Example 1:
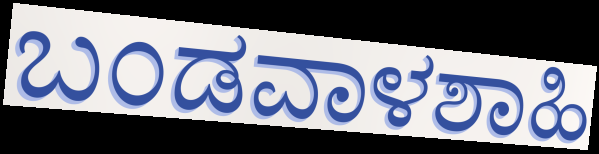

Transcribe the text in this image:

ಬಂಡವಾಳಶಾಹಿ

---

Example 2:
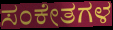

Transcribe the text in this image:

ಸಂಕೇತಗಳ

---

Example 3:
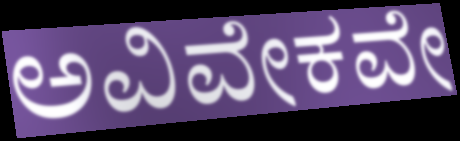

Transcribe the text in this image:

ಅವಿವೇಕವೇ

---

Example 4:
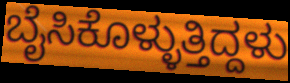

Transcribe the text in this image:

ಬೈಸಿಕೊಳ್ಳುತ್ತಿದ್ದಳು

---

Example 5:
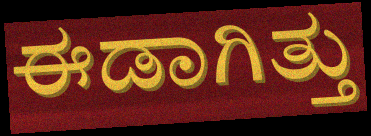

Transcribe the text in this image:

ಈಡಾಗಿತ್ತು